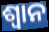
ଶ୍ୱାନ